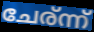
ചേര്ന്ന്